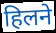
हिलने